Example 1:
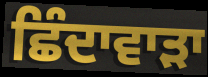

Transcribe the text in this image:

ਛਿੰਦਾਵਾੜਾ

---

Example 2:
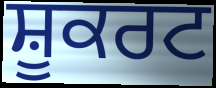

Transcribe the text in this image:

ਸ਼ੂਕਰਟ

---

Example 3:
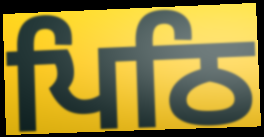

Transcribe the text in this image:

ਪਿਠਿ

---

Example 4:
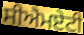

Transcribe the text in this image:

ਸੀਐਮਏਟੀ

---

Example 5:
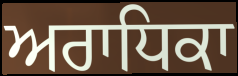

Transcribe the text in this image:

ਅਰਾਧਿਕਾ